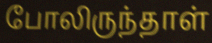
போலிருந்தாள்